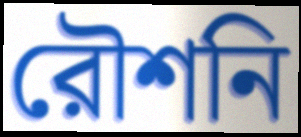
রৌশনি